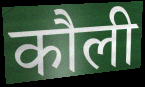
कौली